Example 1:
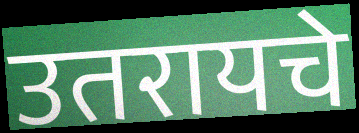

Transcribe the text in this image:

उतरायचे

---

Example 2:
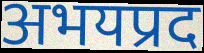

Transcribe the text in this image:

अभयप्रद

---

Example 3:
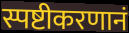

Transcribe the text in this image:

स्पष्टीकरणानं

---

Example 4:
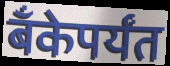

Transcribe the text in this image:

बॅंकेपर्यंत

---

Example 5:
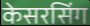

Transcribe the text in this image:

केसरसिंग